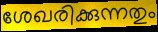
ശേഖരിക്കുന്നതും